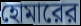
হোমারের